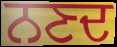
ਨਣਦ